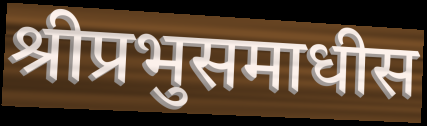
श्रीप्रभुसमाधीस